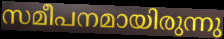
സമീപനമായിരുന്നു